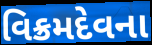
વિક્રમદેવના